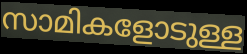
സാമികളോടുള്ള